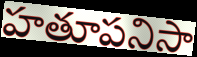
హతూపనిసా